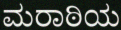
ಮರಾಠಿಯ